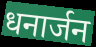
धनार्जन